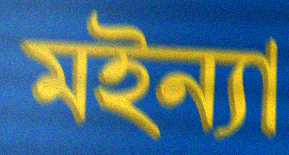
মইন্যা